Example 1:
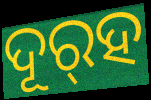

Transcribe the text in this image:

ଦୂର୍‌ହ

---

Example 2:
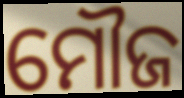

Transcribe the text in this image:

ମୌଜ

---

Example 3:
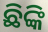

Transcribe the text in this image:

ଛିଙ୍କି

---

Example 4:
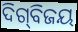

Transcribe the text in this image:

ଦିଗ୍‍ବିଜୟ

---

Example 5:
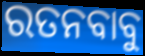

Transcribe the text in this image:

ରତନବାବୁ